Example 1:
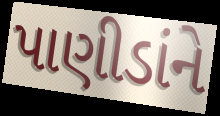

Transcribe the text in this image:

પાણીડાંને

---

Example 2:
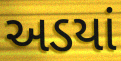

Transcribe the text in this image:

અડયાં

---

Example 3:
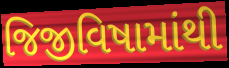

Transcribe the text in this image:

જિજીવિષામાંથી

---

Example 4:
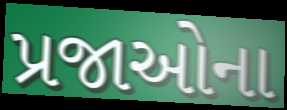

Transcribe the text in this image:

પ્રજાઓના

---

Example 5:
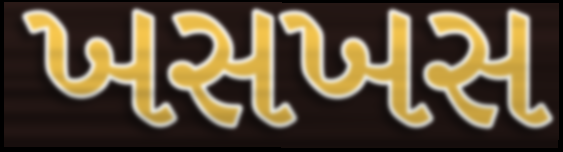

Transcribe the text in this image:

ખસખસ